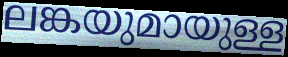
ലങ്കയുമായുള്ള